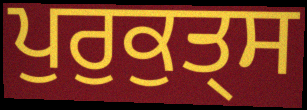
ਪੁਰੁਕੁਤ੍ਸ